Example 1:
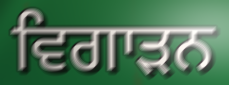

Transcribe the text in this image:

ਵਿਗਾੜਨ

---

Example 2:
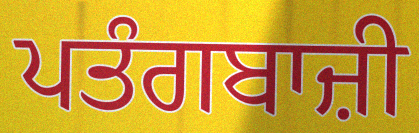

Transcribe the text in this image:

ਪਤੰਗਬਾਜ਼ੀ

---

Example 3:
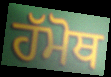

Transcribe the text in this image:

ਹੱਮੋਥ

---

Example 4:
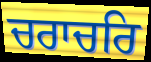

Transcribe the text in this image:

ਚਰਾਚਰਿ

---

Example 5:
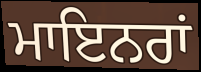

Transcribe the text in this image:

ਮਾਇਨਰਾਂ